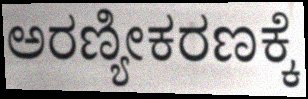
ಅರಣ್ಯೀಕರಣಕ್ಕೆ